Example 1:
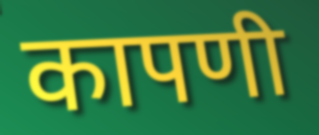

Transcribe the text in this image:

कापणी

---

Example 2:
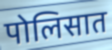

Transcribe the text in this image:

पोलिसात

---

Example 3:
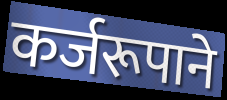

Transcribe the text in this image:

कर्जरूपाने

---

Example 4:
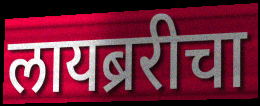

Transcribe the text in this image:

लायब्ररीचा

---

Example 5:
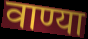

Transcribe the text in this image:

वाण्या